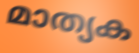
മാത്യക